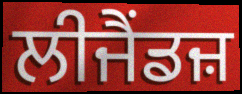
ਲੀਜੈਂਡਜ਼